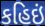
કહિઇં